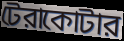
টেরাকোটার